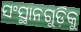
ସଂସ୍ଥାନଗୁଡ଼ିକୁ